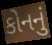
કોનનું